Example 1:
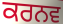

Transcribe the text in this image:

ਕਰਨਵ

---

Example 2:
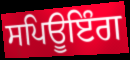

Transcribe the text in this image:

ਸਪਿਊਇੰਗ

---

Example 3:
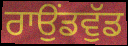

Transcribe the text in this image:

ਰਾਉਂਡਵੁੱਡ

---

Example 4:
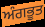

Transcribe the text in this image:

ਅੰਗਭੂਤ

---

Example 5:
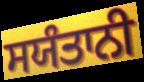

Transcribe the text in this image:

ਸਯੰਤਾਨੀ